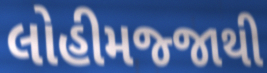
લોહીમજ્જાથી